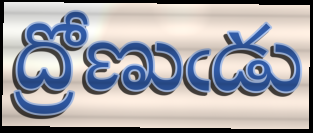
ద్రోణుఁడు